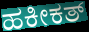
ಹಕೀಕತ್